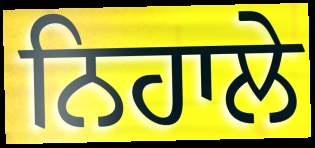
ਨਿਹਾਲੇ